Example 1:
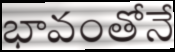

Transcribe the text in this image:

భావంతోనే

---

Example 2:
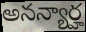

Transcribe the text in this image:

అనన్యార్హ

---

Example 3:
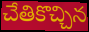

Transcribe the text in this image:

చేతికొచ్చిన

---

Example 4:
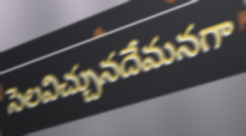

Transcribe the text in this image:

సెలవిచ్చునదేమనగా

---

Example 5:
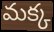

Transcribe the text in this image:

మక్క